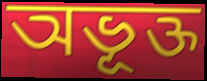
অভূক্ত